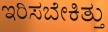
ಇರಿಸಬೇಕಿತ್ತು